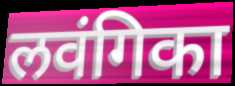
लवंगिका